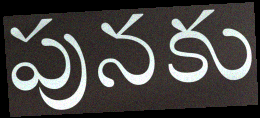
పునకు